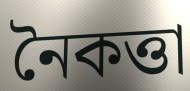
নৈকত্তা